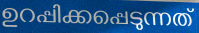
ഉറപ്പിക്കപ്പെടുന്നത്